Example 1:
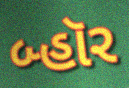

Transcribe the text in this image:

બ્હૉર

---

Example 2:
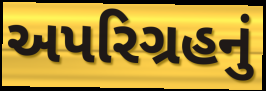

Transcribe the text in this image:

અપરિગ્રહનું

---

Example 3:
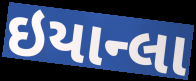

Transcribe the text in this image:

ઇયાન્લા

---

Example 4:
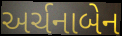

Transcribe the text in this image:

અર્ચનાબેન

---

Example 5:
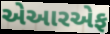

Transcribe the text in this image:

એઆરએફ